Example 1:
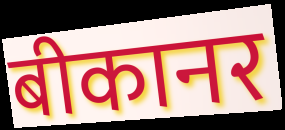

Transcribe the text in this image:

बीकानर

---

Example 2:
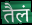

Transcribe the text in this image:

तैलं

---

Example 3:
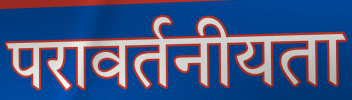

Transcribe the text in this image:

परावर्तनीयता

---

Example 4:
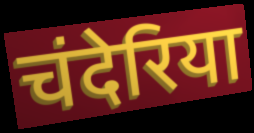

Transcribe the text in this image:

चंदेरिया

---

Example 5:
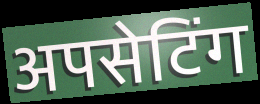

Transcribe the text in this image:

अपसेटिंग